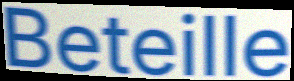
Beteille